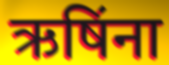
ऋषिंना